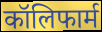
कॉलिफार्म